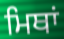
ਮਿਥਾਂ